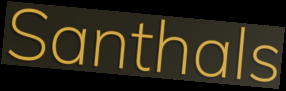
Santhals